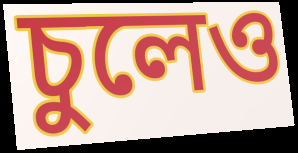
চুলেও